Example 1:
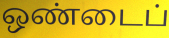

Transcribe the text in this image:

ஒண்டைப்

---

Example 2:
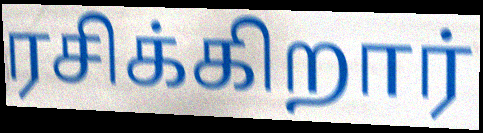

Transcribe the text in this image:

ரசிக்கிறார்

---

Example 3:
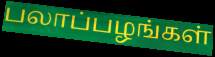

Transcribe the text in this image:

பலாப்பழங்கள்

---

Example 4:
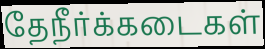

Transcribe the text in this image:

தேநீர்க்கடைகள்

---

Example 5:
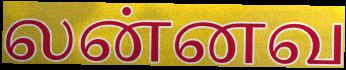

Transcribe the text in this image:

லன்னவ